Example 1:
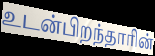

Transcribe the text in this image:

உடன்பிறந்தாரின்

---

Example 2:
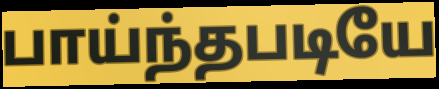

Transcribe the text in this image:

பாய்ந்தபடியே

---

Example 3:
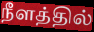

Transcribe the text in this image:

நீளத்தில்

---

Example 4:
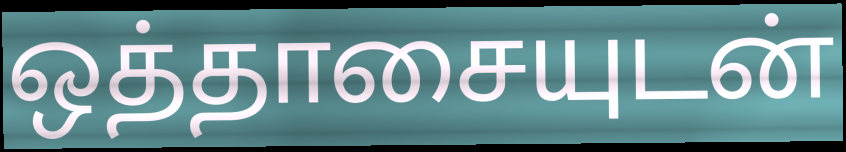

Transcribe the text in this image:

ஒத்தாசையுடன்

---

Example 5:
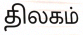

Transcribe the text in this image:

திலகம்